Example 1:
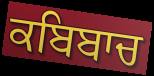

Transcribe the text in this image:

ਕਬਿਬਾਚ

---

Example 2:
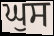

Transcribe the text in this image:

ਘੁਸ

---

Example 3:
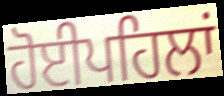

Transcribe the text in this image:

ਹੋਈਪਹਿਲਾਂ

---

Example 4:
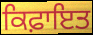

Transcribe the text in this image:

ਕਿਫ਼ਾਇਤ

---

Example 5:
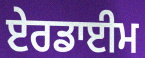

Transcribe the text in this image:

ਏਰਡਾਈਮ